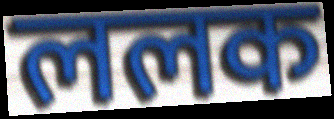
ललक